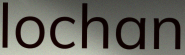
lochan